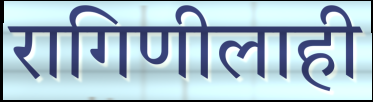
रागिणीलाही